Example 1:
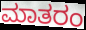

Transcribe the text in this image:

ಮಾತರಂ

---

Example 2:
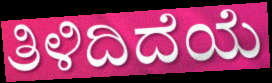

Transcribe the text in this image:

ತಿಳಿದಿದೆಯೆ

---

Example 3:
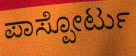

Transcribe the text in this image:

ಪಾಸ್ಪೋರ್ಟು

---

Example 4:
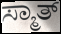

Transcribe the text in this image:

ಸ್ಮಾತ್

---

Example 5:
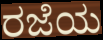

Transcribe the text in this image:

ರಜೆಯ